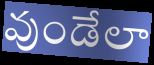
వుండేలా